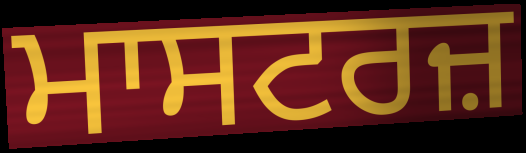
ਮਾਸਟਰਜ਼